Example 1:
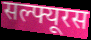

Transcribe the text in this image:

सल्फ्यूरस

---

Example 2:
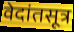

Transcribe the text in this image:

वेदांतसूत्र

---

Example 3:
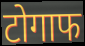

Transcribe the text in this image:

टोगाफ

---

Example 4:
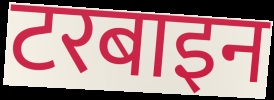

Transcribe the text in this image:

टरबाइन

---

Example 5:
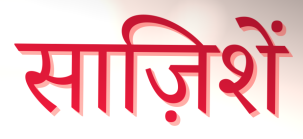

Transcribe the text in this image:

साज़िशें